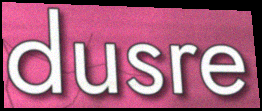
dusre